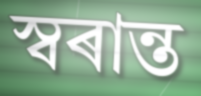
স্বৰান্ত